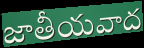
జాతీయవాద